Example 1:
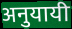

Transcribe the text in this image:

अनुयायी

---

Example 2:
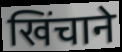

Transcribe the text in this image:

खिंचाने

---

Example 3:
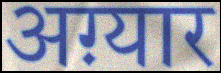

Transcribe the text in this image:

अग़्यार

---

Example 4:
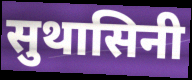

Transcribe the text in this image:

सुथासिनी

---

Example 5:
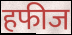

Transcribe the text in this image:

हफीज